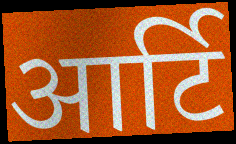
आर्टि